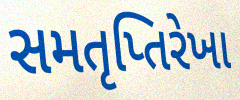
સમતૃપ્તિરેખા